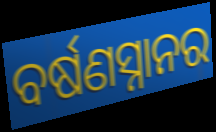
ବର୍ଷଣସ୍ନାନର